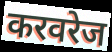
करवरेज